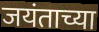
जयंताच्या